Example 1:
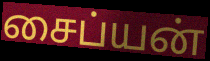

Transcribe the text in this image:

சைப்யன்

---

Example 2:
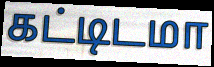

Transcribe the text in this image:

கட்டிடமா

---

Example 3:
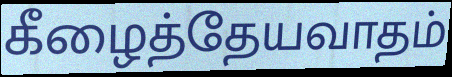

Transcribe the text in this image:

கீழைத்தேயவாதம்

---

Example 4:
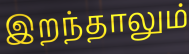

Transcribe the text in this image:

இறந்தாலும்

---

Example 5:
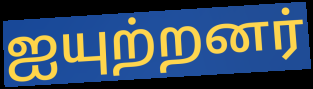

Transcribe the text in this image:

ஐயுற்றனர்